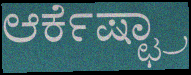
ಆರ್ಕೆಷ್ಟ್ರಾ